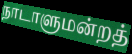
நாடாளுமன்றத்